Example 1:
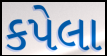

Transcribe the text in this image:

કપેલા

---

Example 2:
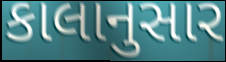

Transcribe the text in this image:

કાલાનુસાર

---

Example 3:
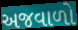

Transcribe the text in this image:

અજવાળો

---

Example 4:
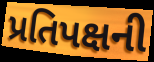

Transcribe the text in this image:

પ્રતિપક્ષની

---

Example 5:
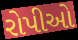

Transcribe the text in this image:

રોપીઓ